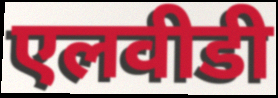
एलवीडी